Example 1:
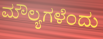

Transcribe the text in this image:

ಮೌಲ್ಯಗಳೆಂದು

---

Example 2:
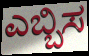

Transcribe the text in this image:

ಎಬ್ಬಿಸ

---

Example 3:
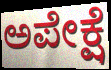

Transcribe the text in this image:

ಅಪೇಕ್ಷೆ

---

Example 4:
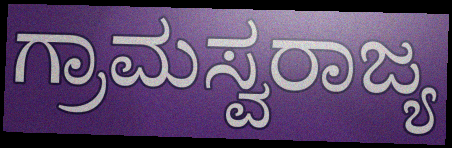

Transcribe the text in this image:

ಗ್ರಾಮಸ್ವರಾಜ್ಯ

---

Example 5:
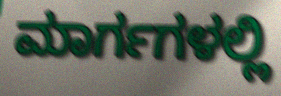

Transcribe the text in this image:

ಮಾರ್ಗಗಳಲ್ಲಿ